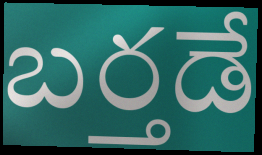
బర్తడే